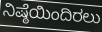
ನಿಷ್ಠೆಯಿಂದಿರಲು